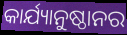
କାର୍ଯ୍ୟାନୁଷ୍ଠାନର